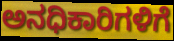
ಅನಧಿಕಾರಿಗಳಿಗೆ